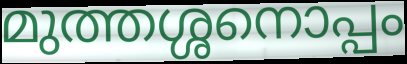
മുത്തശ്ശനൊപ്പം